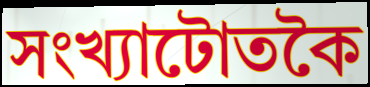
সংখ্যাটোতকৈ